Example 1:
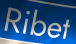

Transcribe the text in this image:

Ribet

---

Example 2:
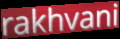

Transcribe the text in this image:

rakhvani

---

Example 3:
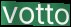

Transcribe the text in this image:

votto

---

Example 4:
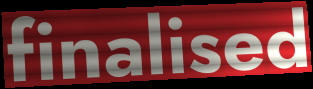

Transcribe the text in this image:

finalised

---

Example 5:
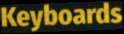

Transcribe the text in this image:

Keyboards